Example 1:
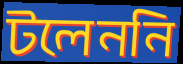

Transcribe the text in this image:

টলেননি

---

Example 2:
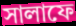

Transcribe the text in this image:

সালাফে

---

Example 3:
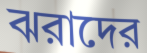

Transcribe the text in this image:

ঝরাদের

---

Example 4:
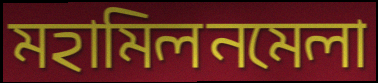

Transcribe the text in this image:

মহামিলনমেলা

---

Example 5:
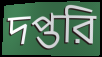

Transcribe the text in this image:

দপ্তরি